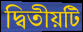
দ্বিতীয়টি